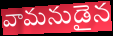
వామనుడైన